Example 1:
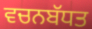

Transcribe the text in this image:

ਵਚਨਬੱਧਤ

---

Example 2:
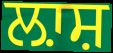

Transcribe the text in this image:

ਲ਼ਾਸ਼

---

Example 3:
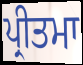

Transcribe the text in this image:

ਪ੍ਰੀਤਮਾ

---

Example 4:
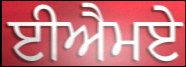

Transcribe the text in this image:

ਈਐਮਏ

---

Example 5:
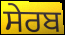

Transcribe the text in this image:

ਸੇਰਬ